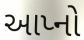
આપ્નો